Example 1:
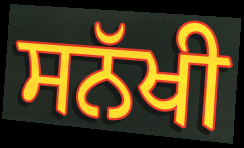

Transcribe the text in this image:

ਸਨੱਖੀ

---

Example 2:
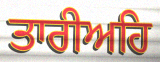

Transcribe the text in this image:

ਤਾਰੀਅਹਿ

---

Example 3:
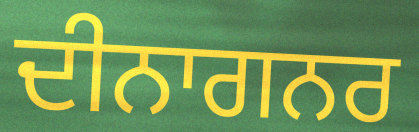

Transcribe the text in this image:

ਦੀਨਾਗਨਰ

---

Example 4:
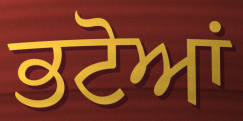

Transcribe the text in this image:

ਭਟੋਆਂ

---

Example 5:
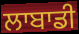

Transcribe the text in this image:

ਲਾਬਾਡੀ